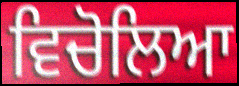
ਵਿਚੋਲਿਆ